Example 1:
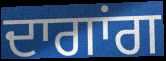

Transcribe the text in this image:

ਦਾਗਾਂਗ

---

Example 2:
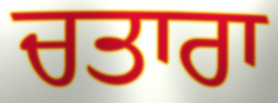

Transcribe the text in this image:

ਚਤਾਰਾ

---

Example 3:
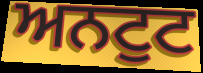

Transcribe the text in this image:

ਅਨਟੁਟ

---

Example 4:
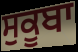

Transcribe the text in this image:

ਸੁਕੂਬਾ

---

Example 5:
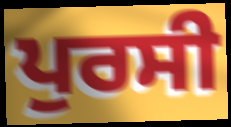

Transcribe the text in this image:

ਪੁਰਸੀ